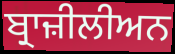
ਬ੍ਰਾਜ਼ੀਲੀਅਨ